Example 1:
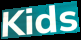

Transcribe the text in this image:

Kids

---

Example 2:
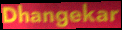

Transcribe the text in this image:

Dhangekar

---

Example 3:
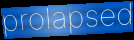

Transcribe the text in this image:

prolapsed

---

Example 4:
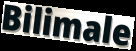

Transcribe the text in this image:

Bilimale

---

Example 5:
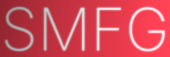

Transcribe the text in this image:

SMFG